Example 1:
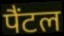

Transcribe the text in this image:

पैंटल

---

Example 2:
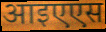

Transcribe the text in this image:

आइएएस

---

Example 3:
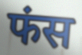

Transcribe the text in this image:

फंस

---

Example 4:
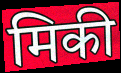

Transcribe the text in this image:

मिकी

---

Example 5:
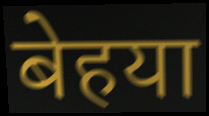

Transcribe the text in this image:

बेहया